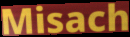
Misach